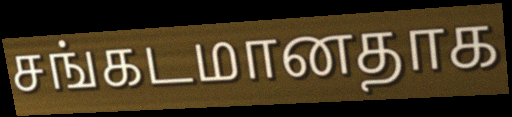
சங்கடமானதாக